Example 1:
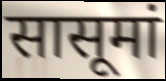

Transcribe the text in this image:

सासूमां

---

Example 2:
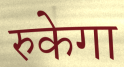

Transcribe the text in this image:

रुकेगा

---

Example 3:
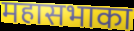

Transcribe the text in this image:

महासभाका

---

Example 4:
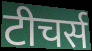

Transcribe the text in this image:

टीचर्स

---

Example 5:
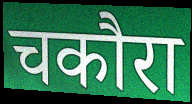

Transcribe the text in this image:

चकौरा